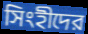
সিংহীদের